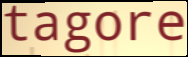
tagore